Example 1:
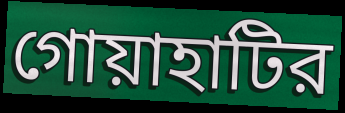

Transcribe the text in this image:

গোয়াহাটির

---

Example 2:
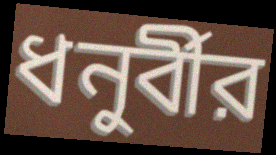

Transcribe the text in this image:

ধনুর্বীর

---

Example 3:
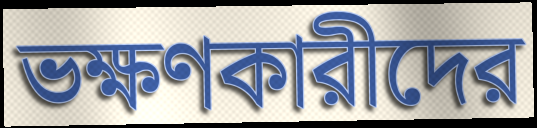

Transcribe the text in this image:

ভক্ষণকারীদের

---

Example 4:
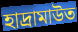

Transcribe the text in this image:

হাদ্রামাউত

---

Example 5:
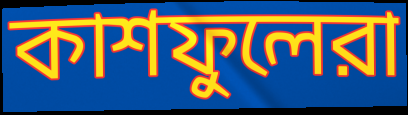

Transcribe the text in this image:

কাশফুলেরা